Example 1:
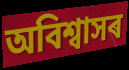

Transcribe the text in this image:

অবিশ্বাসৰ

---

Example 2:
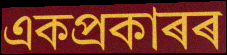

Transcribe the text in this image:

একপ্ৰকাৰৰ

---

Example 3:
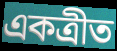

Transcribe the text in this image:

একত্ৰীত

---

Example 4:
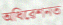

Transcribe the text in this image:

অধিৱেশনত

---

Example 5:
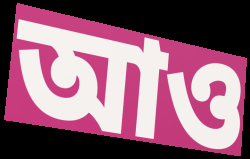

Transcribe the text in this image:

আও